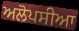
ਅਲੋਪਸੀਆ